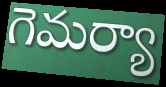
గెమర్యా